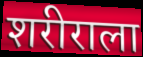
शरीराला